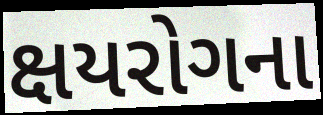
ક્ષયરોગના